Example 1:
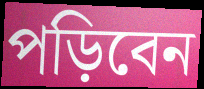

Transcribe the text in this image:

পড়িবেন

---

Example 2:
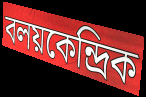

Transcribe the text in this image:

বলয়কেন্দ্রিক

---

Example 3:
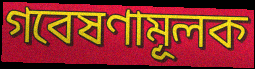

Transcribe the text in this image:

গবেষণামূলক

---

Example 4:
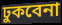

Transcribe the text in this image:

ঢুকবেনা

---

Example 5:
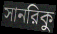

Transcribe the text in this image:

সানরিকু